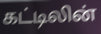
கட்டிலின்